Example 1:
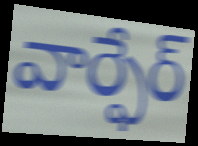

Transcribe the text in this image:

వార్ఫేర్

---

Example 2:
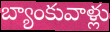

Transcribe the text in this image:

బ్యాంకువాళ్లు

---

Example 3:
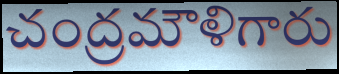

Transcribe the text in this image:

చంద్రమౌళిగారు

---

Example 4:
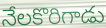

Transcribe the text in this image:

నేలకొరిగాడు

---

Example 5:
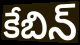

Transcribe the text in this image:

కేబిన్